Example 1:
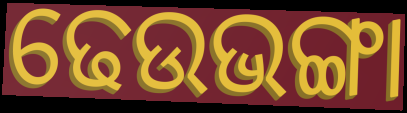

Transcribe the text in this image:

ଢେଉଭଙ୍ଗା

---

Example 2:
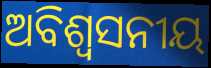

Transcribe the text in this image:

ଅବିଶ୍ବସନୀୟ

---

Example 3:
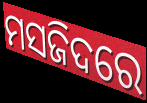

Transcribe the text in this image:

ମସଜିଦରେ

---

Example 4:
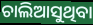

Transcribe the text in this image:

ଚାଲିଆସୁଥିବା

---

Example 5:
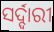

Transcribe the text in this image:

ସର୍ଦ୍ଦାରୀ